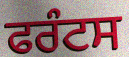
ਫਰੰਟਸ